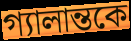
গ্যালান্তকে